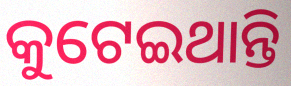
କୁଟେଇଥାନ୍ତି